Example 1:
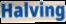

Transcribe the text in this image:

Halving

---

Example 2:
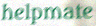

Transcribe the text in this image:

helpmate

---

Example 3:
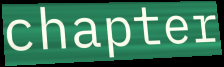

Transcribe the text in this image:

chapter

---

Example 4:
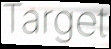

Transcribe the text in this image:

Target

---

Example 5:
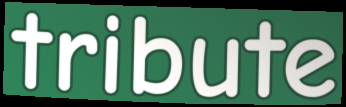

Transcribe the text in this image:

tribute